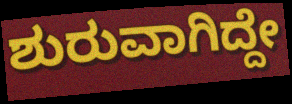
ಶುರುವಾಗಿದ್ದೇ